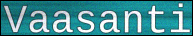
Vaasanti